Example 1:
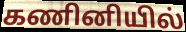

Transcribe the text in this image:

கணினியில்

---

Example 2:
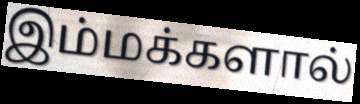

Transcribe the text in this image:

இம்மக்களால்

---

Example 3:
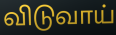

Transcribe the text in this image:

விடுவாய்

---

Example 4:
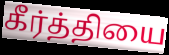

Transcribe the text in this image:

கீர்த்தியை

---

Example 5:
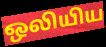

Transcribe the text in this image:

ஒலியிய